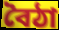
বৈঠা